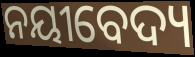
ନୟୀବେଦ୍ୟ